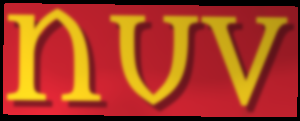
nuv